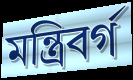
মন্ত্রিবর্গ